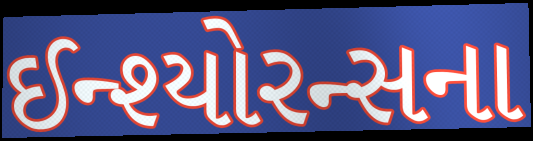
ઈન્શ્યોરન્સના